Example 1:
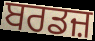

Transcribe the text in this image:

ਬਰਡਜ਼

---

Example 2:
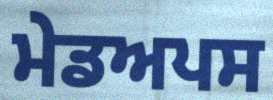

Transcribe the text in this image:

ਮੇਡਅਪਸ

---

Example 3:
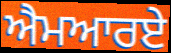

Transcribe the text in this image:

ਐਮਆਰਏ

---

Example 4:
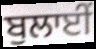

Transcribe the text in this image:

ਬੁਲਾਈਂ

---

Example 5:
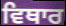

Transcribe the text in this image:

ਵਿਥਾਰ